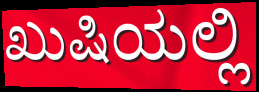
ಖುಷಿಯಲ್ಲಿ